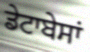
ਡੇਟਾਬੇਸਾਂ